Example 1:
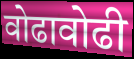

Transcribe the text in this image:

वोढावोढी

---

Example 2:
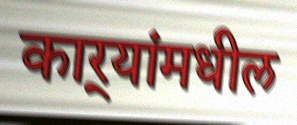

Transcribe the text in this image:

कार्यांमधील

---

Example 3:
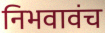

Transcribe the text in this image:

निभवावंच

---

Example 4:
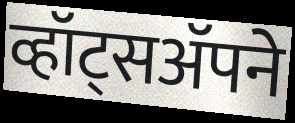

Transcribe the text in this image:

व्हॉट्सॲपने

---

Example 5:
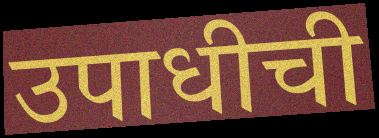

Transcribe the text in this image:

उपाधीची